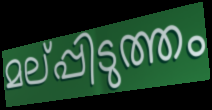
മല്പ്പിടുത്തം